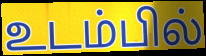
உடம்பில்